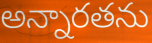
అన్నారతను